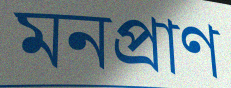
মনপ্রাণ